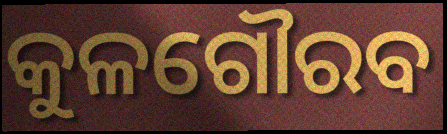
କୁଳଗୌରବ